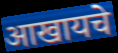
आखायचे